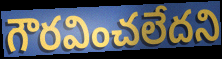
గౌరవించలేదని